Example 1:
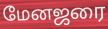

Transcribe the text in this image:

மேனஜரை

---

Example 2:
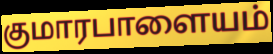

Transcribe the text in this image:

குமாரபாளையம்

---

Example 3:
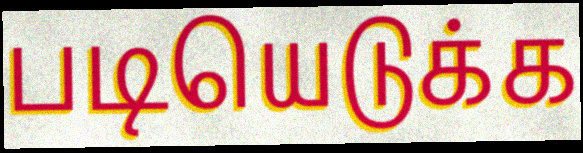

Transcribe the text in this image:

படியெடுக்க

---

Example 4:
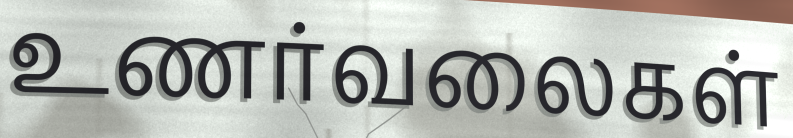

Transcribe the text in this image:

உணர்வலைகள்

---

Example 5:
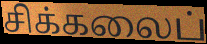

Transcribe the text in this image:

சிக்கலைப்